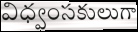
విధ్వంసకులుగా